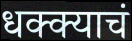
धक्क्याचं